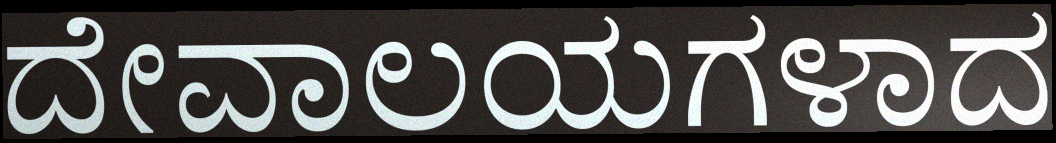
ದೇವಾಲಯಗಳಾದ